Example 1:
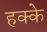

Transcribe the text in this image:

हक्के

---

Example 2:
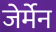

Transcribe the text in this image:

जेर्मेन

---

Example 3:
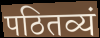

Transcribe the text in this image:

पठितव्यं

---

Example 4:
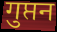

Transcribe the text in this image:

गुप्तन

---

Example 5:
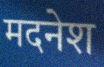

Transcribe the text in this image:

मदनेश